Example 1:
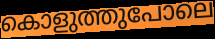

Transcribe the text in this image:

കൊളുത്തുപോലെ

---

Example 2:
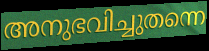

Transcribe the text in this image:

അനുഭവിച്ചുതന്നെ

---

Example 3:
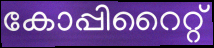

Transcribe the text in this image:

കോപ്പിറൈറ്റ്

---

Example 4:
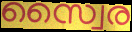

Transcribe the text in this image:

സ്വൈര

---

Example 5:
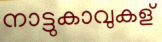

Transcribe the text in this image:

നാട്ടുകാവുകള്